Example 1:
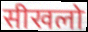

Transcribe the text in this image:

सीखलो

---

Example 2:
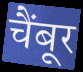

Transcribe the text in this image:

चैंबूर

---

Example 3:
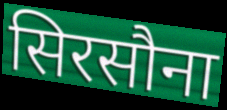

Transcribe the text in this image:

सिरसौना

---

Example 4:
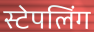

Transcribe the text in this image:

स्टेपलिंग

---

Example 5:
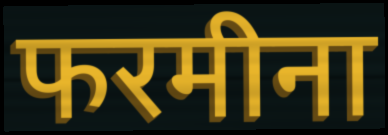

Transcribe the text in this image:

फरमीना